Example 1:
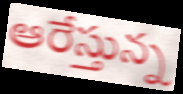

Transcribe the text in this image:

ఆరేస్తున్న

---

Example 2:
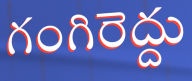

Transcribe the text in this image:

గంగిరెద్దు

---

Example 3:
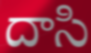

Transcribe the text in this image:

దాసి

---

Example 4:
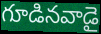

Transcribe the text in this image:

గూడినవాడై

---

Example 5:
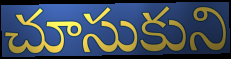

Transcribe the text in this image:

చూసుకుని